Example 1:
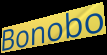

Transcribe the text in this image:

Bonobo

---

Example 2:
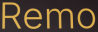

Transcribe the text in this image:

Remo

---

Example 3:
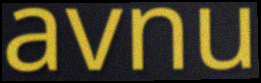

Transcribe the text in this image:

avnu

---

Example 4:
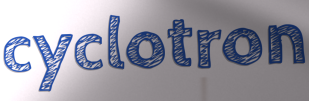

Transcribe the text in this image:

cyclotron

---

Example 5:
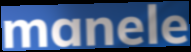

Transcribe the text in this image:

manele